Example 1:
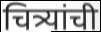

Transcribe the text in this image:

चित्र्यांची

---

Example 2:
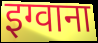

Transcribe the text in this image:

इग्वाना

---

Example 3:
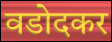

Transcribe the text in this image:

वडोदकर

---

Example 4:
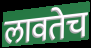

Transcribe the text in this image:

लावतेच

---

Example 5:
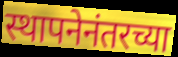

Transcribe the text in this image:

स्थापनेनंतरच्या